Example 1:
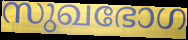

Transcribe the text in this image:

സുഖഭോഗ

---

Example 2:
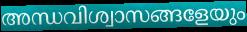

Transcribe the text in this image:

അന്ധവിശ്വാസങ്ങളേയും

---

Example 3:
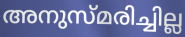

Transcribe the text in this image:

അനുസ്മരിച്ചില്ല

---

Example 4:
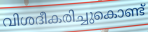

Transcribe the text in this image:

വിശദീകരിച്ചുകൊണ്ട്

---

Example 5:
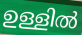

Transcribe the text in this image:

ഉള്ളിൽ